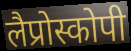
लैप्रोस्कोपी